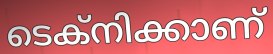
ടെക്നിക്കാണ്